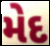
મેદ